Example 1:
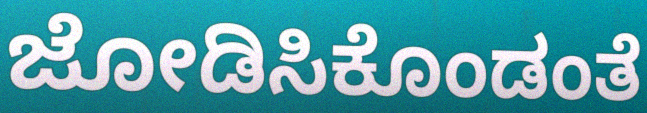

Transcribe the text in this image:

ಜೋಡಿಸಿಕೊಂಡಂತೆ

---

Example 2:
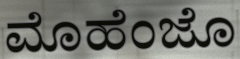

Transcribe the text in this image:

ಮೊಹೆಂಜೊ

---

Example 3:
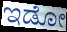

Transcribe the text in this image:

ಇಡೋ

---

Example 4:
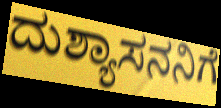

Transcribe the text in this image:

ದುಶ್ಯಾಸನನಿಗೆ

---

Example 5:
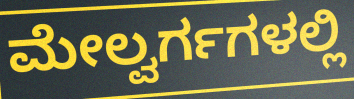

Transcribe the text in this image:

ಮೇಲ್ವರ್ಗಗಳಲ್ಲಿ